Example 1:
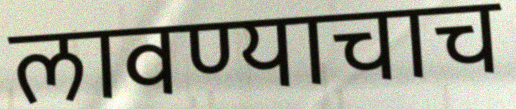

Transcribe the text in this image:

लावण्याचाच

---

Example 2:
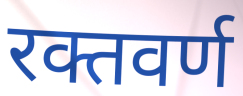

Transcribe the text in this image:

रक्तवर्ण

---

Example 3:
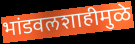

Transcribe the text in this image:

भांडवलशाहीमुळे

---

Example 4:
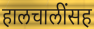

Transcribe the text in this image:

हालचालींसह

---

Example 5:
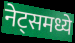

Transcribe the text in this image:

नेट्समध्ये